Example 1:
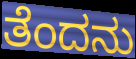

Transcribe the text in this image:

ತೆಂದನು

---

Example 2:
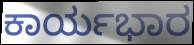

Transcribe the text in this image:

ಕಾರ್ಯಭಾರ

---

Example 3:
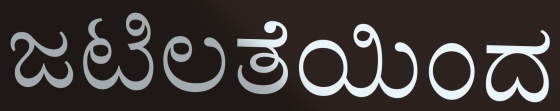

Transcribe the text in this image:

ಜಟಿಲತೆಯಿಂದ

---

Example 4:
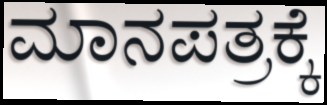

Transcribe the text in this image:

ಮಾನಪತ್ರಕ್ಕೆ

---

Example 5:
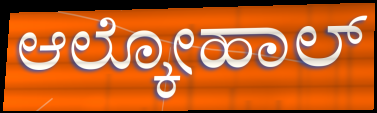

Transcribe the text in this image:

ಆಲ್ಕೋಹಾಲ್